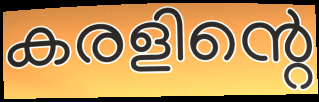
കരളിന്റെ